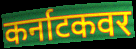
कर्नाटकवर